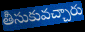
తీసుకువచ్చారు